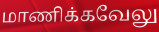
மாணிக்கவேலு